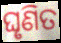
ଘୃଣିତ